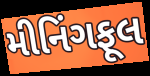
મીનિંગફૂલ